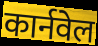
कार्नवेल